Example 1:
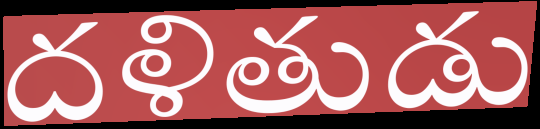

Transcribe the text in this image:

దళితుడు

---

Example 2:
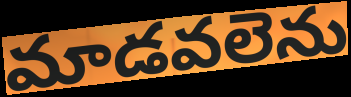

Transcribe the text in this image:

మాడవలెను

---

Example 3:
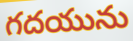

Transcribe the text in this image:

గదయును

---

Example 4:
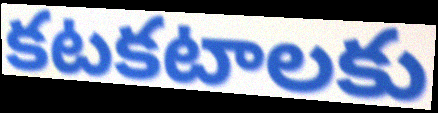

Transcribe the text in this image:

కటకటాలకు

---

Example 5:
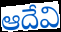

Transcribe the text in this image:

ఆదేవి